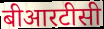
बीआरटीसी